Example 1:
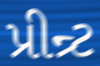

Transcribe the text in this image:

પ્રીન્ર્ટ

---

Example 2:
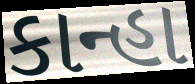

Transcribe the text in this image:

કાન્હા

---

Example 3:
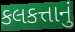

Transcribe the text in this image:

કલકત્તાનું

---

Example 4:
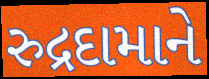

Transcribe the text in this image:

રુદ્રદામાને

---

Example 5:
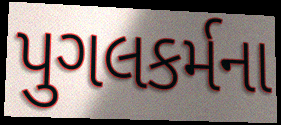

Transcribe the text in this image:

પુગલકર્મના